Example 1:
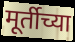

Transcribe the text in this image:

मूर्तीच्या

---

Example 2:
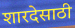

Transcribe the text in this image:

शारदेसाठी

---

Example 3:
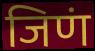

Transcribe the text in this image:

जिणं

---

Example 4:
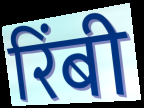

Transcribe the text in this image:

रिंबी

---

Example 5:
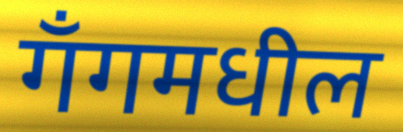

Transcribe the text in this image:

गँगमधील